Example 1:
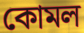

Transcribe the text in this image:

কোমল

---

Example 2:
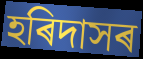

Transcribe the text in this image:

হৰিদাসৰ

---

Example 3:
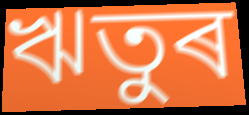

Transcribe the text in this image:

ঋতুৰ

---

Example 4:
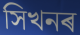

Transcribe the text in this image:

সিখনৰ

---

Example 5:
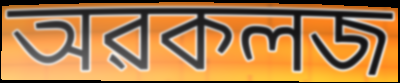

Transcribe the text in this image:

অৱকলজ